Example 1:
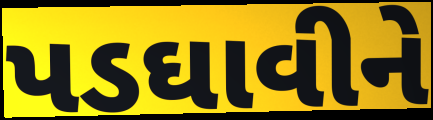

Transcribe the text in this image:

પડઘાવીને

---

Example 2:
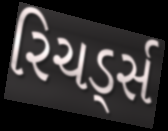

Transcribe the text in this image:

રિચર્ડ્સ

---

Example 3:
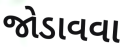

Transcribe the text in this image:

જોડાવવા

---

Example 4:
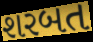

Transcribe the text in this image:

શરબત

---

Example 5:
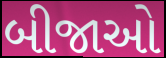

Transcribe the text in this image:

બીજાઓ